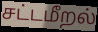
சட்டமீறல்